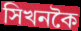
সিখনকৈ